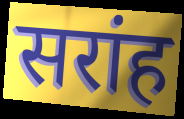
सरांह